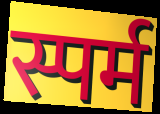
स्पर्म